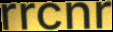
rrcnr